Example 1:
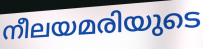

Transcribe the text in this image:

നീലയമരിയുടെ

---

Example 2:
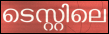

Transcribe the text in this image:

ടെസ്റ്റിലെ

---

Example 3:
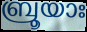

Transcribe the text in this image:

ബ്രൂയാഃ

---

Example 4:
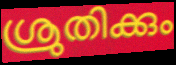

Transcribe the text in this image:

ശ്രുതിക്കും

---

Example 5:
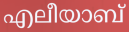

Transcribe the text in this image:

എലീയാബ്